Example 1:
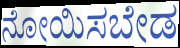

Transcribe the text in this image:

ನೋಯಿಸಬೇಡ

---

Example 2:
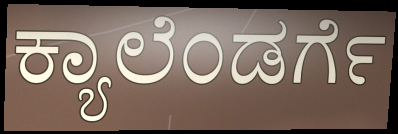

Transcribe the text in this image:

ಕ್ಯಾಲೆಂಡರ್ಗೆ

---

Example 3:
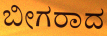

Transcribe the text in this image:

ಬೀಗರಾದ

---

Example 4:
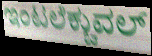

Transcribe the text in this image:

ಇಂಟಲೆಕ್ಚುವಲ್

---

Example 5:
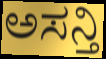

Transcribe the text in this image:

ಅಸನ್ತಿ